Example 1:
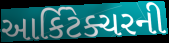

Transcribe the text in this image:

આર્કિટેક્ચરની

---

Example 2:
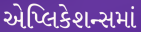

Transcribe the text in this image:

એપ્લિકેશન્સમાં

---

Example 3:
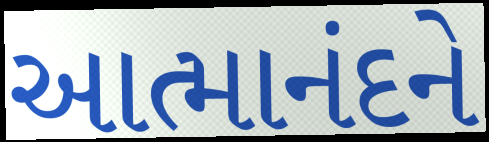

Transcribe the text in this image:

આત્માનંદને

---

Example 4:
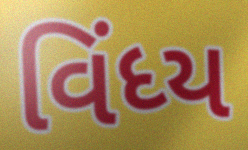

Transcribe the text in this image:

વિંધ્ય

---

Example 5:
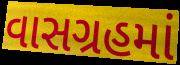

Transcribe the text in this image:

વાસગ્રહમાં